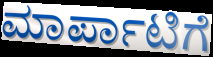
ಮಾರ್ಪಾಟಿಗೆ